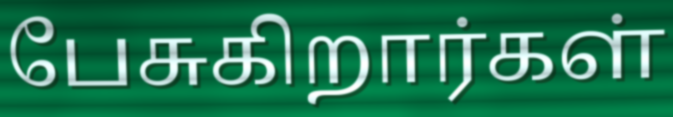
பேசுகிறார்கள்